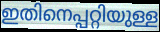
ഇതിനെപ്പറ്റിയുള്ള